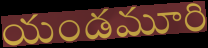
యండమూరి